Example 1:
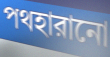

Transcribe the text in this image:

পথহারানো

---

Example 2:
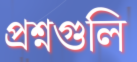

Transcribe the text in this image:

প্রশ্নগুলি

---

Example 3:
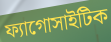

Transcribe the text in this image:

ফ্যাগোসাইটিক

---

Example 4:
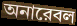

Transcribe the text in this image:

অনারেবল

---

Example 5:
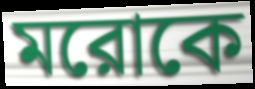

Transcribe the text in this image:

মরোকে